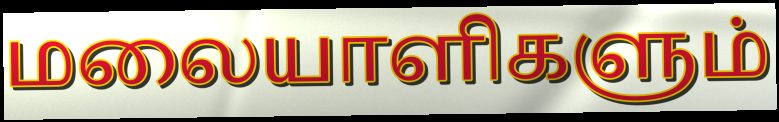
மலையாளிகளும்